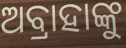
ଅବ୍ରାହାଙ୍କୁ